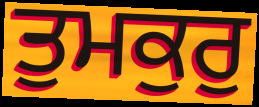
ਤੁਮਕੁਰੁ